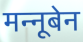
मन्नूबेन